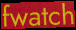
fwatch